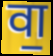
वा॒